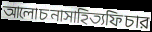
আলোচনাসাহিত্যফিচার